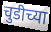
चुडीच्या